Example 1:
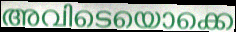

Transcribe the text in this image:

അവിടെയൊക്കെ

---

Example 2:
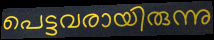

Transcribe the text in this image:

പെട്ടവരായിരുന്നു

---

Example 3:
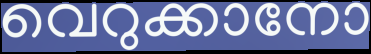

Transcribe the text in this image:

വെറുക്കാനോ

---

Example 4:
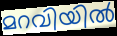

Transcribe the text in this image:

മറവിയിൽ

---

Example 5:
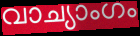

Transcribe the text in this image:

വാച്യാംഗം